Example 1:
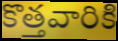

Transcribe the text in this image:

కొత్తవారికి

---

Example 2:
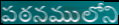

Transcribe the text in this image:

పఠనములోని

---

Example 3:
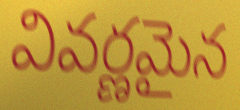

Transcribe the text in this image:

వివర్ణమైన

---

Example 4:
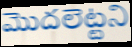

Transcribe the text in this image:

మొదలెట్టని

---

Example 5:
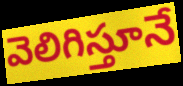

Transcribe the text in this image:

వెలిగిస్తూనే